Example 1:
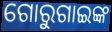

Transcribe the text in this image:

ଗୋରୁଗାଇଙ୍କ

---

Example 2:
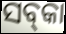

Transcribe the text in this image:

ସବ୍‌କା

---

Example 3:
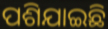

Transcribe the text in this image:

ପଶିଯାଇଛି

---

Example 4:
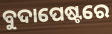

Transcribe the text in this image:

ବୁଦାପେଷ୍ଟରେ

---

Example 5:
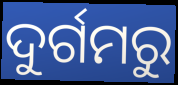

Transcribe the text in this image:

ଦୁର୍ଗମରୁ